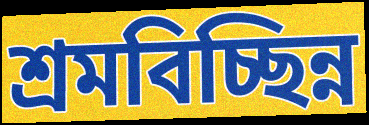
শ্রমবিচ্ছিন্ন